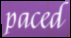
paced